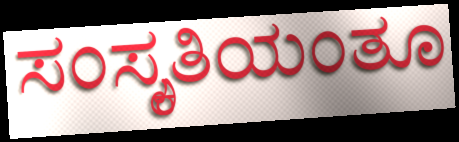
ಸಂಸ್ಕೃತಿಯಂತೂ